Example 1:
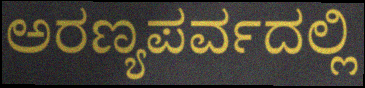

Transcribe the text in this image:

ಅರಣ್ಯಪರ್ವದಲ್ಲಿ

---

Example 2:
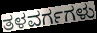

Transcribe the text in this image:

ತಳವರ್ಗಗಳು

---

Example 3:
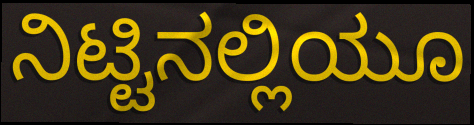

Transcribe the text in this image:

ನಿಟ್ಟಿನಲ್ಲಿಯೂ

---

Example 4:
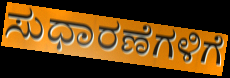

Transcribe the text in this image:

ಸುಧಾರಣೆಗಳಿಗೆ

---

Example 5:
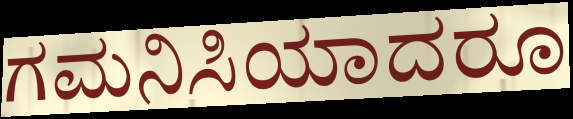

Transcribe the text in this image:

ಗಮನಿಸಿಯಾದರೂ